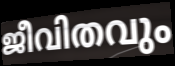
ജീവിതവും